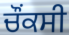
ਚੌਂਕਸੀ